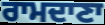
ਰਾਮਦਾਣਾ